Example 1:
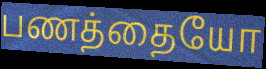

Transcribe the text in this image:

பணத்தையோ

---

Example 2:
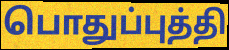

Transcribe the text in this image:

பொதுப்புத்தி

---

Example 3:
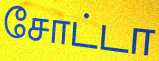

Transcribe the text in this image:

சோட்டா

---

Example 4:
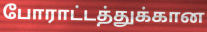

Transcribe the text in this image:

போராட்டத்துக்கான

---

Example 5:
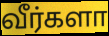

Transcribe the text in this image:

வீர்களா